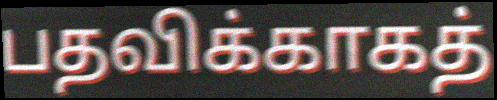
பதவிக்காகத்